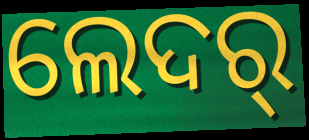
ଲେଦର୍